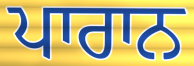
ਪਾਰਾਨ